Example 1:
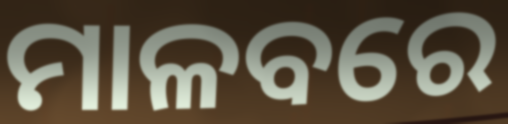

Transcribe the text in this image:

ମାଳବରେ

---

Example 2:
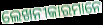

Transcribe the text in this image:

ଲେଖନୀକାରମାନେ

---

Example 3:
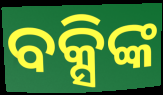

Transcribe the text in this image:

ବକ୍ସିଙ୍କ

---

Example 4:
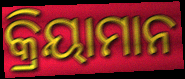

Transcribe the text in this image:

କ୍ରିୟାମାନ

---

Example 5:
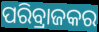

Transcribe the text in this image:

ପରିବ୍ରାଜକର